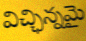
విచ్ఛిన్నమై